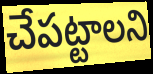
చేపట్టాలని